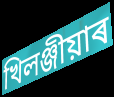
খিলঞ্জীয়াৰ